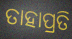
ତାହାପ୍ରତି